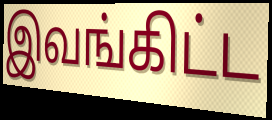
இவங்கிட்ட